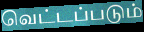
வெட்டப்படும்